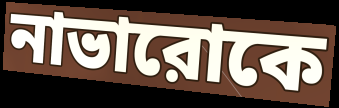
নাভারোকে